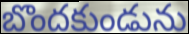
బొందకుండును